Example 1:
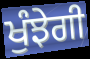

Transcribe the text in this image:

ਖੁੰਝੇਗੀ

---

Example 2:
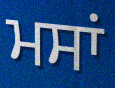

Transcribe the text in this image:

ਮਸਾਂ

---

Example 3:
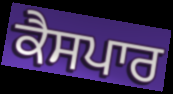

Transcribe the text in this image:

ਕੈਸਪਾਰ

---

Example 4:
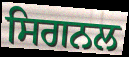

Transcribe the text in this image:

ਸਿਗਨਲ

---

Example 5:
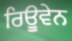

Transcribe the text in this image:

ਰਿਊਵੇਨ